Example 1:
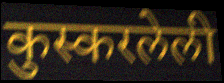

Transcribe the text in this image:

कुस्करलेली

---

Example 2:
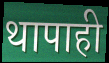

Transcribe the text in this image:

थापाही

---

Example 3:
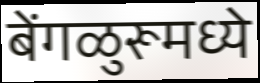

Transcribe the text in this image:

बेंगळुरूमध्ये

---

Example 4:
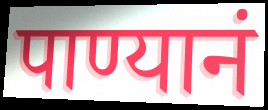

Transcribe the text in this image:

पाण्यानं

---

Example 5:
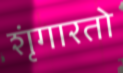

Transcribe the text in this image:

शृंगारतो